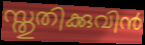
സ്തുതിക്കുവിൻ